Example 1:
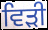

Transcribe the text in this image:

ਵਿੜੀ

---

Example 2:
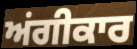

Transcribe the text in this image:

ਅਂਗੀਕਾਰ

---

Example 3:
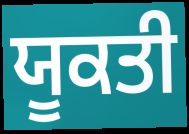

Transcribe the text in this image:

ਯੂਕਤੀ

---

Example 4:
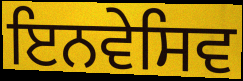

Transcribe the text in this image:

ਇਨਵੇਸਿਵ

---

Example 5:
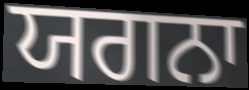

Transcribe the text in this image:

ਯਗਨਾ